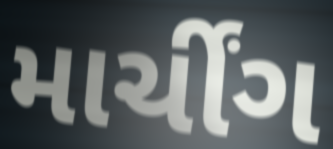
માર્ચીંગ